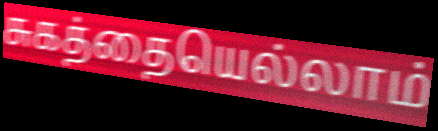
சுகத்தையெல்லாம்